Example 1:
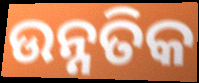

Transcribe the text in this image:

ଉନ୍ନତିକ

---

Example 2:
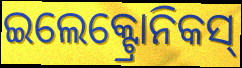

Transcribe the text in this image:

ଇଲେକ୍ଟ୍ରୋନିକସ୍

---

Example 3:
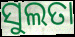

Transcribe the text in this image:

ସୁଲତା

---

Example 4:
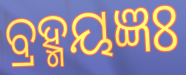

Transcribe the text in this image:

ବ୍ରହ୍ମୟଜ୍ଞଃ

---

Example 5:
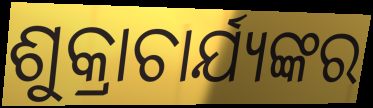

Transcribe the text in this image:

ଶୁକ୍ରାଚାର୍ଯ୍ୟଙ୍କର